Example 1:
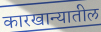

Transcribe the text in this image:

कारखान्यातील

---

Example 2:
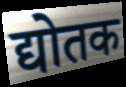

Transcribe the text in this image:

द्योतक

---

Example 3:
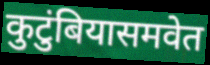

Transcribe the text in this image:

कुटुंबियासमवेत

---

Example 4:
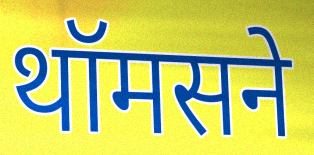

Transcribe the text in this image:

थॉमसने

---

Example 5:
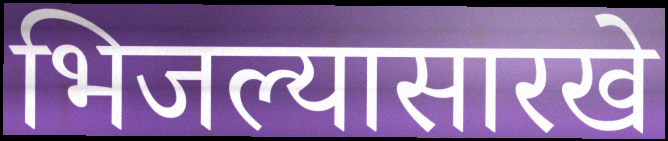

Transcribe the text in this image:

भिजल्यासारखे